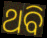
ଥବି